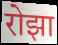
रोझा